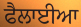
ਫੈਲਾਈਆ